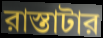
রাস্তাটার